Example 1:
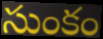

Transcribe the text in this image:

సుంకం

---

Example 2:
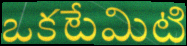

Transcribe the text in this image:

ఒకటేమిటి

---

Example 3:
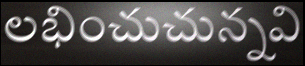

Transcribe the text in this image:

లభించుచున్నవి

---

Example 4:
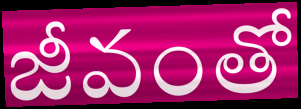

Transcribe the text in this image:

జీవంతో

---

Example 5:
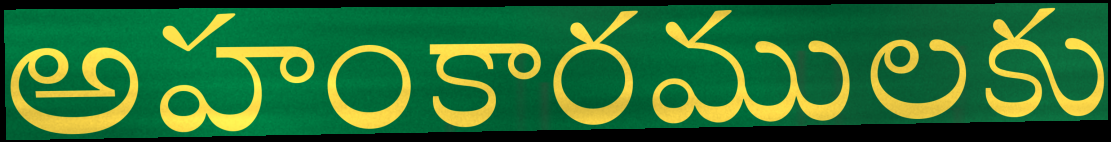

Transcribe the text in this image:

అహంకారములకు